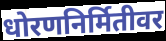
धोरणनिर्मितीवर